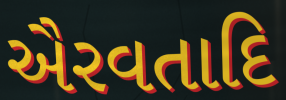
ઐરવતાદિ